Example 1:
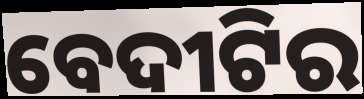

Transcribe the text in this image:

ବେଦୀଟିର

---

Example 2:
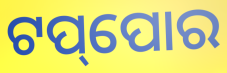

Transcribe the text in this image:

ଟପ୍‌ପୋର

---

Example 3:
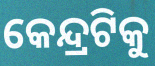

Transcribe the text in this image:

କେନ୍ଦ୍ରଟିକୁ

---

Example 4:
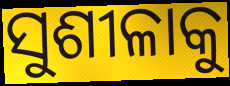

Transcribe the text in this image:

ସୁଶୀଳାକୁ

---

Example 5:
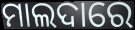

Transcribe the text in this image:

ମାଲଦାରେ